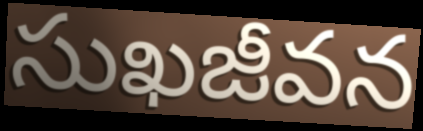
సుఖజీవన